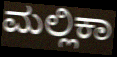
ಮಲ್ಲಿಕಾ